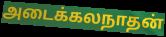
அடைக்கலநாதன்